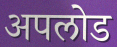
अपलोड